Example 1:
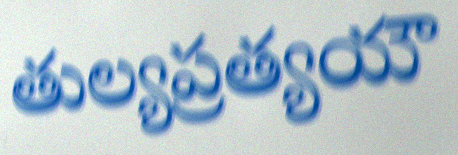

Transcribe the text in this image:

తుల్యప్రత్యయౌ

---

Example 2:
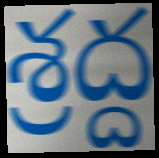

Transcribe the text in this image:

శ్రద్ద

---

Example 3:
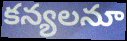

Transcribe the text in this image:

కన్యలనూ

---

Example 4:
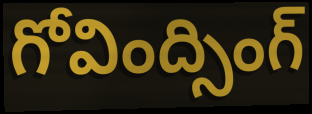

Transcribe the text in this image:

గోవింద్సింగ్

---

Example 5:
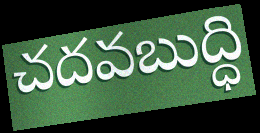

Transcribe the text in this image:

చదవబుద్ధి